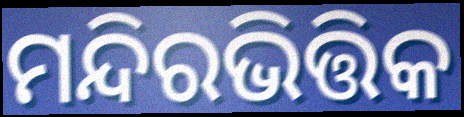
ମନ୍ଦିରଭିତ୍ତିକ